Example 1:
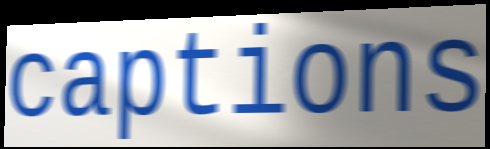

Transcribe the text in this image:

captions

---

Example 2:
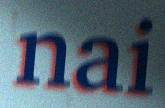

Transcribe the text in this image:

nai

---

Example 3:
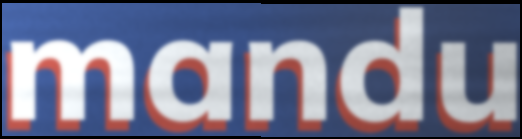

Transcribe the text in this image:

mandu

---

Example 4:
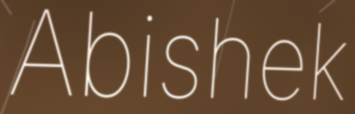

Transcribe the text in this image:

Abishek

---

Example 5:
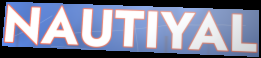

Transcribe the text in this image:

NAUTIYAL